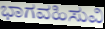
ಭಾಗವಹಿಸುವಿ